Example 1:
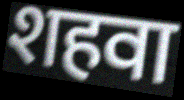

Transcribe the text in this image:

शहवा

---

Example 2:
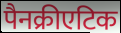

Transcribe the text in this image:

पैनक्रीएटिक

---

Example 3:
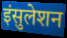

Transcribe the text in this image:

इंसुलेशन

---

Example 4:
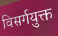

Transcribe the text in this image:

विसर्गयुक्त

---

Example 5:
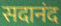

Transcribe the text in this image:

सदानंद